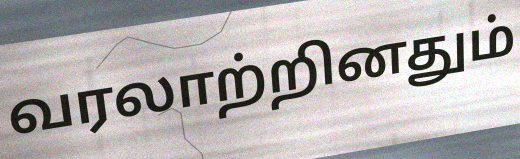
வரலாற்றினதும்